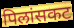
पिलांसकट